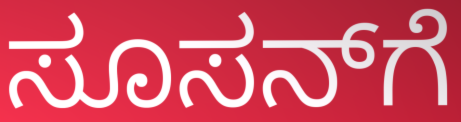
ಸೂಸನ್‌ಗೆ